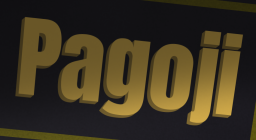
Pagoji